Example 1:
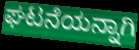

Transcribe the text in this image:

ಘಟನೆಯನ್ನಾಗಿ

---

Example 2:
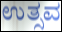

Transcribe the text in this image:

ಉತ್ಸವ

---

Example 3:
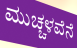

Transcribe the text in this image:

ಮುಚ್ಚಳವೆನೆ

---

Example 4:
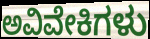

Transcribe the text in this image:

ಅವಿವೇಕಿಗಳು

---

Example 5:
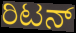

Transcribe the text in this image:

ರಿಟನ್